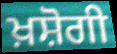
ਖ਼ਸ਼ੋਗੀ